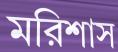
মরিশাস